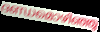
ദണ്ഡമൊഴിഞ്ഞു